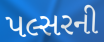
પલ્સરની